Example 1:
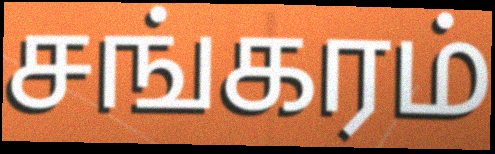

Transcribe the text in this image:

சங்கரம்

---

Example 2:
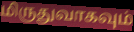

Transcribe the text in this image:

மிருதுவாகவும்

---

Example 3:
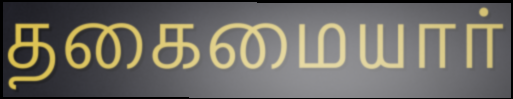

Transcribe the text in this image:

தகைமையார்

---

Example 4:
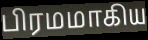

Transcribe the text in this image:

பிரமமாகிய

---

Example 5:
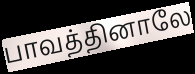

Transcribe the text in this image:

பாவத்தினாலே